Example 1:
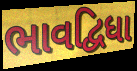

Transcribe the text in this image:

ભાવદ્વિધા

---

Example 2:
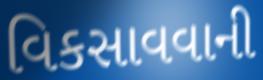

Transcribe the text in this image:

વિકસાવવાની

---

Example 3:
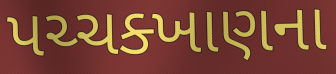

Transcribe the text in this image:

પચ્ચક્ખાણના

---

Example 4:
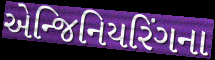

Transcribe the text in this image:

એન્જિનિયરિંગના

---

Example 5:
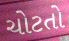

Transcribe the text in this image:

ચોટતો